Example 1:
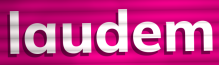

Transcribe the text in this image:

laudem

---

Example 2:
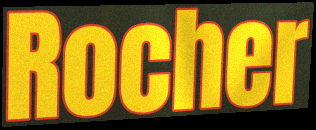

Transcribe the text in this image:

Rocher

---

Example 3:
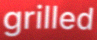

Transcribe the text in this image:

grilled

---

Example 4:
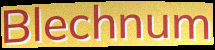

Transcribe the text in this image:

Blechnum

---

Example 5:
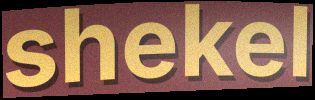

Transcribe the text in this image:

shekel